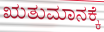
ಋತುಮಾನಕ್ಕೆ